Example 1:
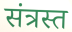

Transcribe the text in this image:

संत्रस्त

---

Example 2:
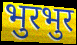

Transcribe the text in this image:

भुरभुर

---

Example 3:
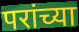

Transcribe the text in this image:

परांच्या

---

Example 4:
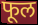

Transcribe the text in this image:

फूल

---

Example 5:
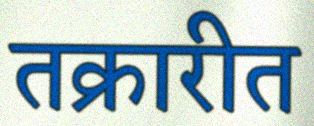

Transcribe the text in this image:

तक्रारीत